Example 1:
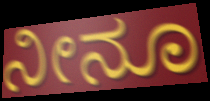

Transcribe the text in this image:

ನೀನೂ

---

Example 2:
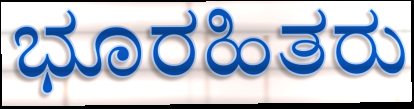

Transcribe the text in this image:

ಭೂರಹಿತರು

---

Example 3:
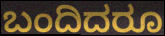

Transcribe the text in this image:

ಬಂದಿದರೂ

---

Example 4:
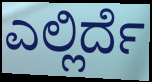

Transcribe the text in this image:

ಎಲ್ಲಿರ್ದೆ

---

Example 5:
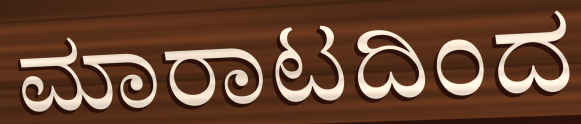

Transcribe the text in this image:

ಮಾರಾಟದಿಂದ